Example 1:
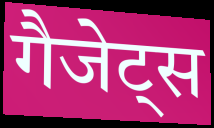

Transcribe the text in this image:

गैजेट्स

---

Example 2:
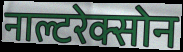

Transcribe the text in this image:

नाल्टरेक्सोन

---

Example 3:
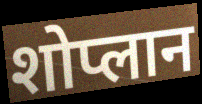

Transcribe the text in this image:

शोप्लान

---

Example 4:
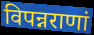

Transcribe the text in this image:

विपन्नराणां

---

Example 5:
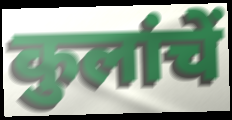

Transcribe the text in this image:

कुलांचें